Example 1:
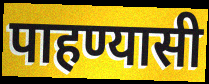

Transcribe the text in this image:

पाहण्यासी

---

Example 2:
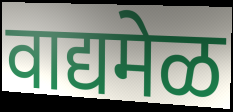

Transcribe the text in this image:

वाद्यमेळ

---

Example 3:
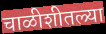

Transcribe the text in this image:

चाळीशीतल्या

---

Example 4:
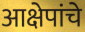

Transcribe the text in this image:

आक्षेपांचे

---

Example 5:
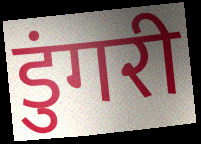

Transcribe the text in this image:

डुंगरी